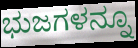
ಭುಜಗಳನ್ನೂ